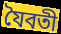
যৈবতী